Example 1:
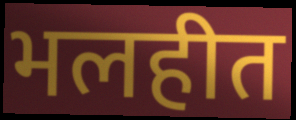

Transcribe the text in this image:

भलहीत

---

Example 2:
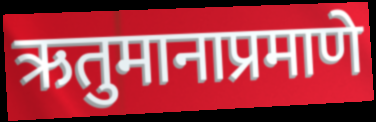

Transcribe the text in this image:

ऋतुमानाप्रमाणे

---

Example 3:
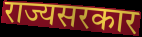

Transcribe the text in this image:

राज्यसरकार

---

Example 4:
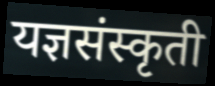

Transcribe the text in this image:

यज्ञसंस्कृती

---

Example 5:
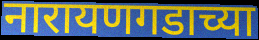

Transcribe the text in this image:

नारायणगडाच्या